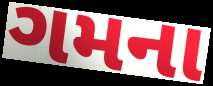
ગમના